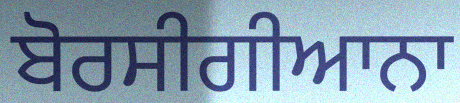
ਬੋਰਸੀਗੀਆਨਾ